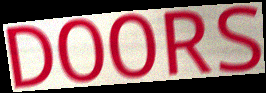
DOORS